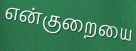
என்குறையை